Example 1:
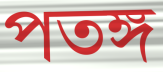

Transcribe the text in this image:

পতঙ্গ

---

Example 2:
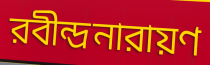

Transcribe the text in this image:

রবীন্দ্রনারায়ণ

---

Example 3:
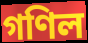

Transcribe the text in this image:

গণিল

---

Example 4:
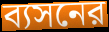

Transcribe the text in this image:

ব্যসনের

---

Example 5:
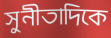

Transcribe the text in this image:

সুনীতাদিকে